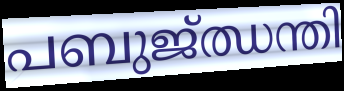
പബുജ്ഝന്തി